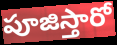
పూజిస్తారో